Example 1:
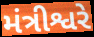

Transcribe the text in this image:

મંત્રીશ્વરે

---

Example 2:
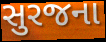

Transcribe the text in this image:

સુરજના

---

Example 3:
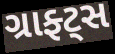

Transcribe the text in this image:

ગ્રાફ્ટ્સ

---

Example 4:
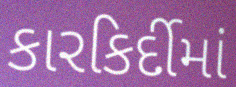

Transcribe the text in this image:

કારકિર્દીમાં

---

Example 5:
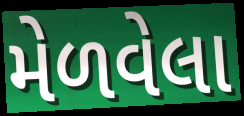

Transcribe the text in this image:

મેળવેલા